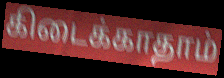
கிடைக்காதாம்